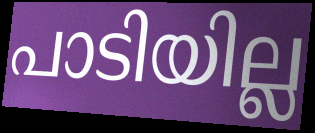
പാടിയില്ല